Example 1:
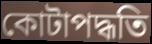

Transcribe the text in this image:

কোটাপদ্ধতি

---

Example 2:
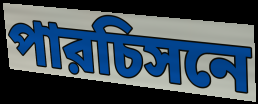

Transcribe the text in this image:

পারচিসনে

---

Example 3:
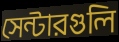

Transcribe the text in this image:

সেন্টারগুলি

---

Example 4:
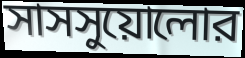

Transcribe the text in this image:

সাসসুয়োলোর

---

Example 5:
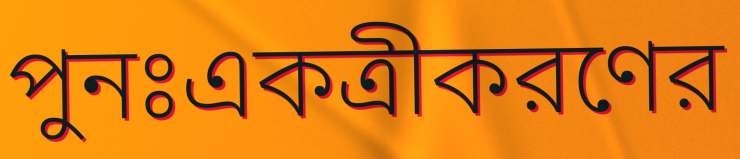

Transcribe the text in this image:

পুনঃএকত্রীকরণের